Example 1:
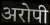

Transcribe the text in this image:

अरोपी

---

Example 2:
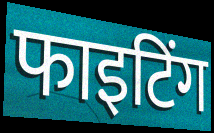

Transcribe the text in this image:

फाइटिंग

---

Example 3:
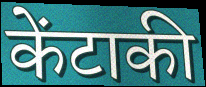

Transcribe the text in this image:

केंटाकी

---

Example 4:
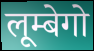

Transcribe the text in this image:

लूम्बेगो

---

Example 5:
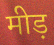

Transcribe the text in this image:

मीड़